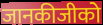
जानकीजीको